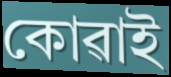
কোৱাই